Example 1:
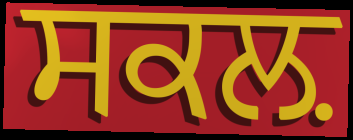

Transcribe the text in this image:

ਸਕਲ਼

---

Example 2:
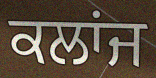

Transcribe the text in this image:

ਕਲਾਂਜ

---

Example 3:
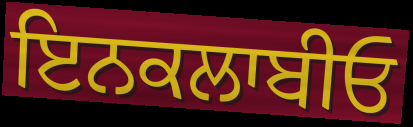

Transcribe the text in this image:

ਇਨਕਲਾਬੀਓ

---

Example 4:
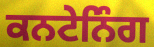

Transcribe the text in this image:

ਕਨਟੇਨਿੰਗ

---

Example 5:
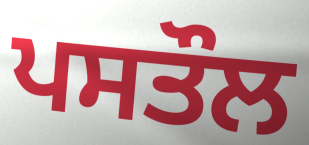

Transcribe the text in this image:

ਪਸਤੌਲ